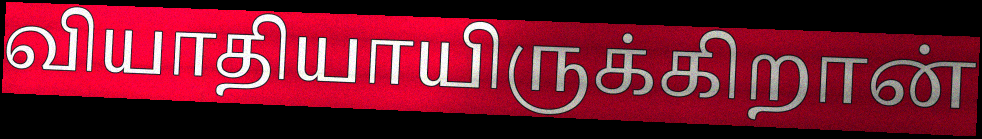
வியாதியாயிருக்கிறான்